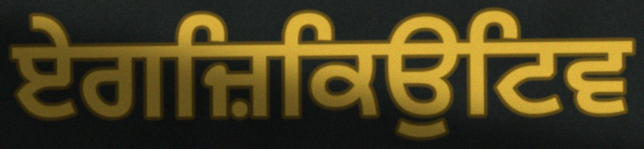
ਏਗਜ਼ਿਕਿਉਟਿਵ